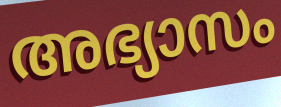
അഭ്യാസം